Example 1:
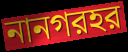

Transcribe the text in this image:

নানগরহর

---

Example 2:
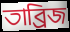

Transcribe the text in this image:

তাব্রিজ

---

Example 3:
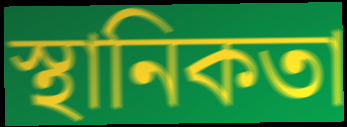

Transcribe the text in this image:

স্থানিকতা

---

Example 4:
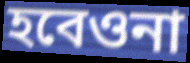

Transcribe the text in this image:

হবেওনা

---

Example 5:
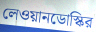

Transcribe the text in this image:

লেওয়ানডোস্কির